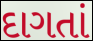
દાગતાં